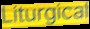
Liturgical